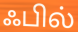
ஃபில்